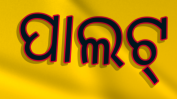
ପାଲଟ୍